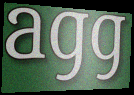
agg